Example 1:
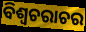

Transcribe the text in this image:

ବିଶ୍ଵଚରାଚର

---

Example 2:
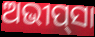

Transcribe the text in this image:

ଅଭୀପ୍‌ସା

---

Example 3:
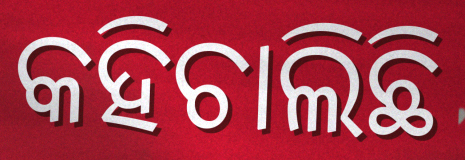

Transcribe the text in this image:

କହିଚାଲିଛି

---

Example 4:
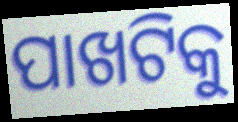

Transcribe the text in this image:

ପାଖଟିକୁ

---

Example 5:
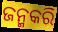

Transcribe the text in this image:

ଜନ୍ମକରି